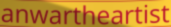
anwartheartist